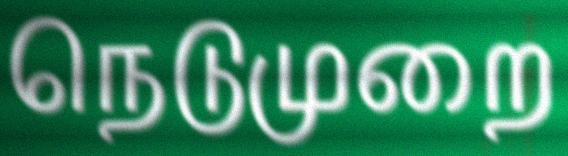
நெடுமுறை